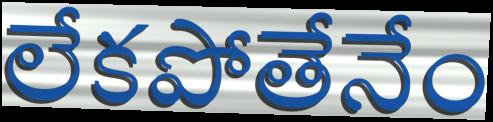
లేకపోతేనేం